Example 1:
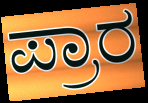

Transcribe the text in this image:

ಪ್ರಾರ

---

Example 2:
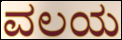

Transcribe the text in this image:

ವಲಯ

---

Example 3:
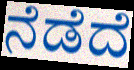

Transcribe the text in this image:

ನೆಡೆದೆ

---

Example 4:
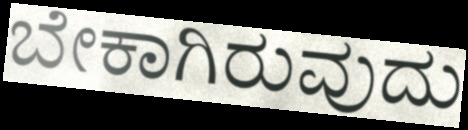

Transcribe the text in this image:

ಬೇಕಾಗಿರುವುದು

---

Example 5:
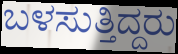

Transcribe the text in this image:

ಬಳಸುತ್ತಿದ್ದರು